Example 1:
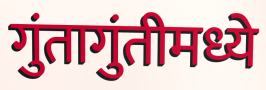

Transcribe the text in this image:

गुंतागुंतीमध्ये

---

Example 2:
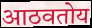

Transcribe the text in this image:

आठवतोय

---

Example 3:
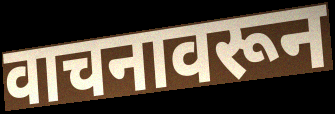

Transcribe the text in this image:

वाचनावरून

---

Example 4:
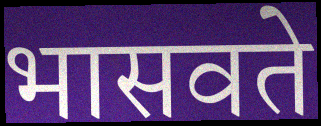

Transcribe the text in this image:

भासवते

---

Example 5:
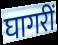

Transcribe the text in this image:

घागरीं